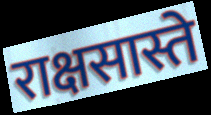
राक्षसास्ते